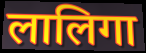
लालिगा